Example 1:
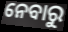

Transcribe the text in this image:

ନେବାରୁ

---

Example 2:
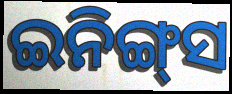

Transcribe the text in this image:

ଇନିଙ୍ଗ୍‌ସ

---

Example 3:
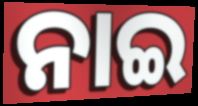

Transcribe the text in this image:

ନାଇ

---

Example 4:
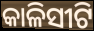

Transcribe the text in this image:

କାଳିସୀଟି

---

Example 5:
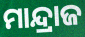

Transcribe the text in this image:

ମାନ୍ଦ୍ରାଜ